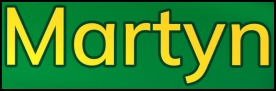
Martyn